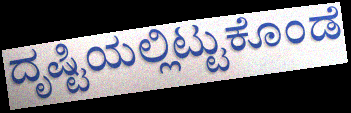
ದೃಷ್ಟಿಯಲ್ಲಿಟ್ಟುಕೊಂಡೆ